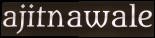
ajitnawale